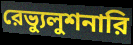
রেভ্যুলুশনারি